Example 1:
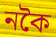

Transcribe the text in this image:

নকৈ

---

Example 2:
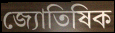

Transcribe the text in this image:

জ্যোতিষিক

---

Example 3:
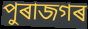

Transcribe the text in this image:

পুৰাজগৰ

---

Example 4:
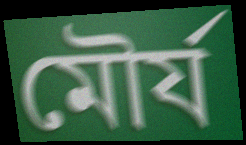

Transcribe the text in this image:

মৌৰ্য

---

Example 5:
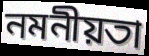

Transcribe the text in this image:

নমনীয়তা